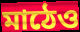
মাঠেও